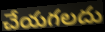
చేయగలదు